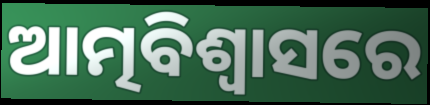
ଆତ୍ମବିଶ୍ଵାସରେ